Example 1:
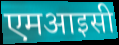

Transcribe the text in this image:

एमआइसी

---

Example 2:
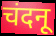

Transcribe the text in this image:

चंदनू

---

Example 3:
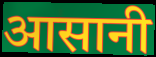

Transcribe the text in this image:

आसानी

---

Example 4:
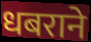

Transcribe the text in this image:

धबराने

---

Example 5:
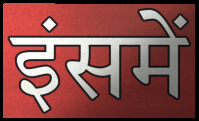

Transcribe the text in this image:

इंसमें